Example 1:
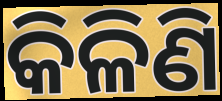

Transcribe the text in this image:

କିଳିଣି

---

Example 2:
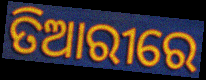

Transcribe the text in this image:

ତିଆରୀରେ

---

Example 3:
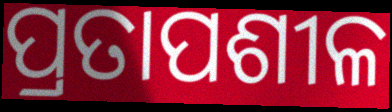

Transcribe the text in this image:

ପ୍ରତାପଶୀଳ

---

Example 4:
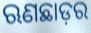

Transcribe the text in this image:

ଋଣଛାଡ଼ର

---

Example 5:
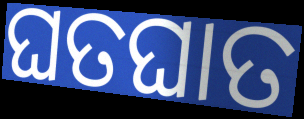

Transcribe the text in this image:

ଘତଘାତ